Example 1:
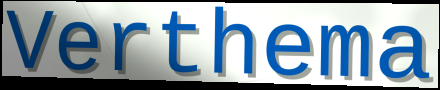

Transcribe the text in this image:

Verthema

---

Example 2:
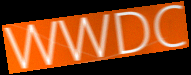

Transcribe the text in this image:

WWDC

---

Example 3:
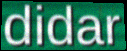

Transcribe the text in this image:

didar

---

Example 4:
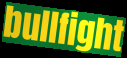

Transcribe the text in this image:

bullfight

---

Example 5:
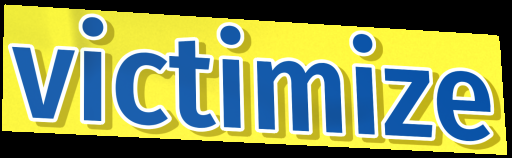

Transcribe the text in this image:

victimize